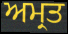
ਅਮ੍ਰਤ